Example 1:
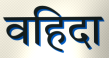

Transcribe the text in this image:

वहिदा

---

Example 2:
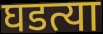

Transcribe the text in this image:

घडत्या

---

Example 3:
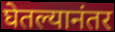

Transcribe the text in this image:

घेतल्यानंतर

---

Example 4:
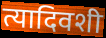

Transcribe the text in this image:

त्यादिवशी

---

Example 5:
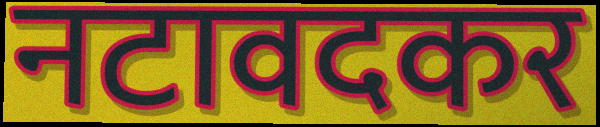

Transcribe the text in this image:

नटावदकर